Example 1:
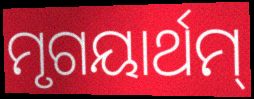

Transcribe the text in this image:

ମୃଗୟାର୍ଥମ୍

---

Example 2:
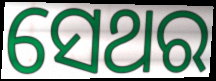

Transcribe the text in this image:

ସେଥର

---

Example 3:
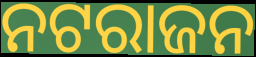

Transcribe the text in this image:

ନଟରାଜନ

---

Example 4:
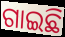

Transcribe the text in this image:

ଗାଇଛି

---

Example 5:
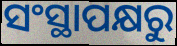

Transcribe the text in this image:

ସଂସ୍ଥାପକ୍ଷରୁ